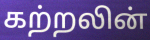
கற்றலின்